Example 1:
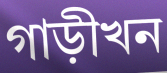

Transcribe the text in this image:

গাড়ীখন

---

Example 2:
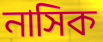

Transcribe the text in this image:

নাসিক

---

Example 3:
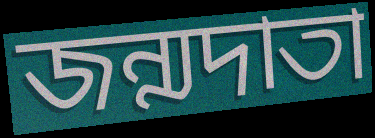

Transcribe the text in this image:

জন্মদাতা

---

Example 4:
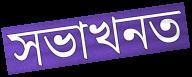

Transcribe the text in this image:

সভাখনত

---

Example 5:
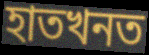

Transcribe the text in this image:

হাতখনত